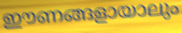
ഈണങ്ങളായാലും